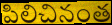
పిలిచినంత